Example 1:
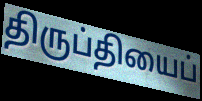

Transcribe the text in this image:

திருப்தியைப்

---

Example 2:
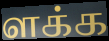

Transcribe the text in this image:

ளக்க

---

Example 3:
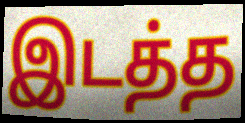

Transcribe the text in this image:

இடத்த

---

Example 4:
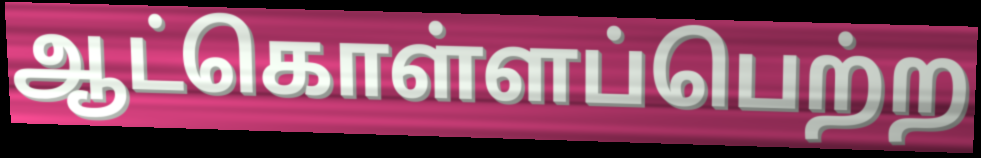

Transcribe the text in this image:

ஆட்கொள்ளப்பெற்ற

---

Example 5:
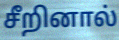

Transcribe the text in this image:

சீறினால்